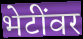
भेटींवर